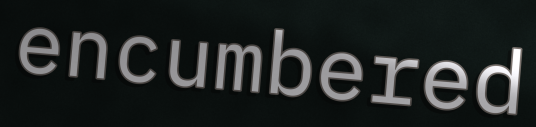
encumbered